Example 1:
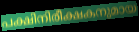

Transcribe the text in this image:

പക്ഷിനിരീക്ഷകനുമായ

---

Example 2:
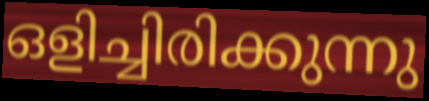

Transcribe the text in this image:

ഒളിച്ചിരിക്കുന്നു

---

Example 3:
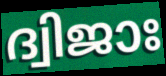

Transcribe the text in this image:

ദ്വിജാഃ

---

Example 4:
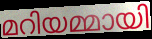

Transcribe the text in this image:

മറിയമ്മായി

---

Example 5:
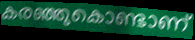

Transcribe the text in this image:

കരഞ്ഞുകൊണ്ടാണ്